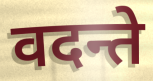
वदन्ते